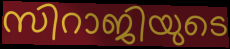
സിറാജിയുടെ